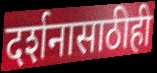
दर्शनासाठीही